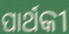
ପାର୍ଥକୀ